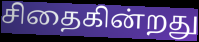
சிதைகின்றது